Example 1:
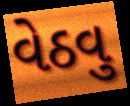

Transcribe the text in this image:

વેઠવુ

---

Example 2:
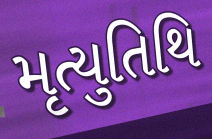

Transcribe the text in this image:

મૃત્યુતિથિ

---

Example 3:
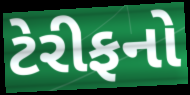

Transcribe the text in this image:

ટેરીફનો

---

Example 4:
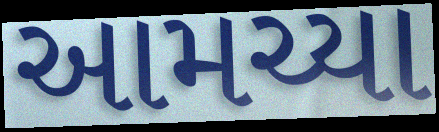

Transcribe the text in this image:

આમચ્યા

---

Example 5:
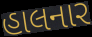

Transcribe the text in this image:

હાલનાર